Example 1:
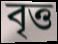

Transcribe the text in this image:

বৃত্ত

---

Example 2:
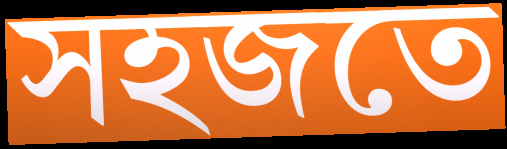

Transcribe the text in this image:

সহজতে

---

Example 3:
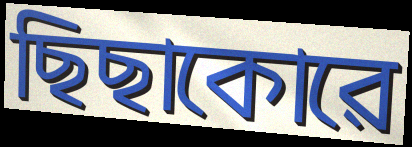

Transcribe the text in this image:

ছিছাকোৱে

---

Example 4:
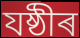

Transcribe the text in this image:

যষ্ঠীৰ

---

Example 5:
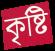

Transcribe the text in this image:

কৃষ্টি